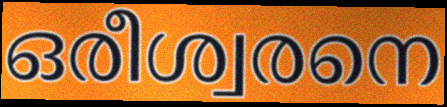
ഒരീശ്വരനെ